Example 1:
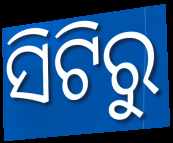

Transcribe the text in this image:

ସିଟିରୁ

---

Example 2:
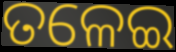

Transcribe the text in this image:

ତଳେଇ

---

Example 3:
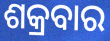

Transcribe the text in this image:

ଶକ୍ରବାର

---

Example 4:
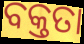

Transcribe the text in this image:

ବକ୍ତତା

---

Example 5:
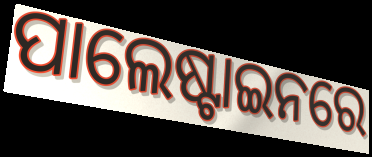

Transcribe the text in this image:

ପାଲେଷ୍ଟାଇନରେ